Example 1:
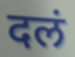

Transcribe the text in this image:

दलं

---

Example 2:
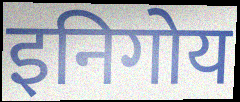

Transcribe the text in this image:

इनिगोय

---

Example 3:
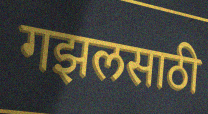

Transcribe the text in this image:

गझलसाठी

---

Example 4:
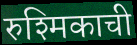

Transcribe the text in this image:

रुश्मिकाची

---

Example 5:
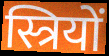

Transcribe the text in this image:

स्त्रियों